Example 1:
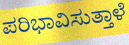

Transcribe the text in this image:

ಪರಿಭಾವಿಸುತ್ತಾಳೆ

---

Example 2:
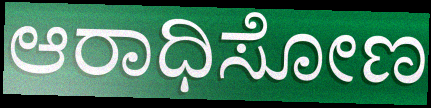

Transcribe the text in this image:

ಆರಾಧಿಸೋಣ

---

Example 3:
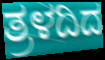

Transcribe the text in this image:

ತ್ರಳದಿದ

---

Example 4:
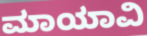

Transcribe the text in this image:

ಮಾಯಾವಿ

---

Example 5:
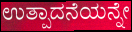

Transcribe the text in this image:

ಉತ್ಪಾದನೆಯನ್ನೇ